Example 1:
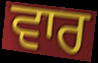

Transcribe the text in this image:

ਵਾਰ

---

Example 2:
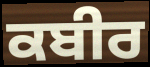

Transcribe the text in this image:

ਕਬੀਰ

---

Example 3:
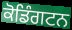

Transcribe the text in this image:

ਕੋਡਿੰਗਟਨ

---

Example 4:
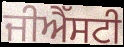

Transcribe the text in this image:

ਜੀਐੱਸਟੀ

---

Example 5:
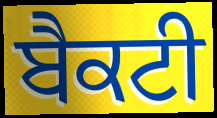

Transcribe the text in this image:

ਬੈਕਟੀ